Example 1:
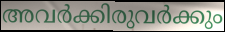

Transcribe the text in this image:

അവർക്കിരുവർക്കും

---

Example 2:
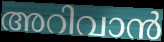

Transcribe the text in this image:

അറിവാൻ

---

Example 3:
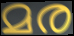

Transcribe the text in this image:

മര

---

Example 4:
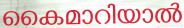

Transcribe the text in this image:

കൈമാറിയാൽ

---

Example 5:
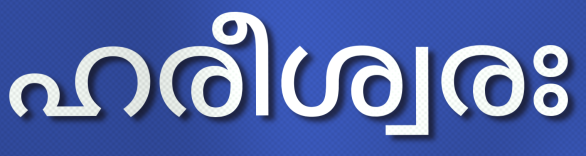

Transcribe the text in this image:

ഹരീശ്വരഃ